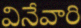
వినేవారి